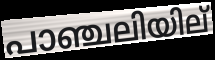
പാഞ്ചലിയില്